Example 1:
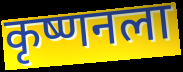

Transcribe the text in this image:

कृष्णनला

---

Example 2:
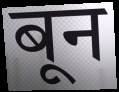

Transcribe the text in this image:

बून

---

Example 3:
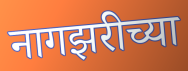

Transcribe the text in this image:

नागझरीच्या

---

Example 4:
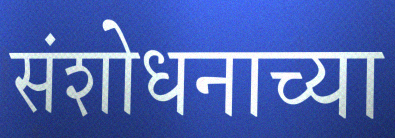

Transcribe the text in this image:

संशोधनाच्या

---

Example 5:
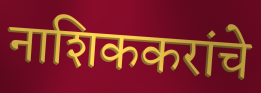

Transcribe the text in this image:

नाशिककरांचे